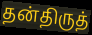
தன்திருத்